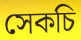
সেকচি